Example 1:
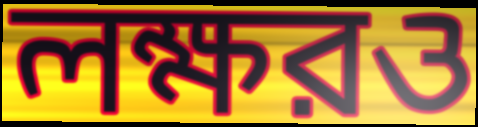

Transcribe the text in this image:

লক্ষরও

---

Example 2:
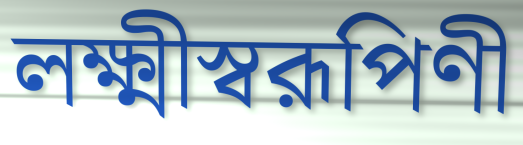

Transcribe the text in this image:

লক্ষ্মীস্বরূপিণী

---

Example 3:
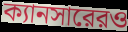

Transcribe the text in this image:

ক্যানসারেরও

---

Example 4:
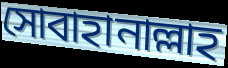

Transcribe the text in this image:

সোবাহানাল্লাহ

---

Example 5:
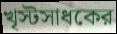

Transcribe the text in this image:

খৃস্টসাধকের